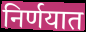
निर्णयात